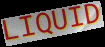
LIQUID